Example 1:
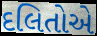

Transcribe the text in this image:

દલિતોએ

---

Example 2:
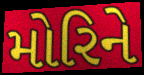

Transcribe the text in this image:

મોરિને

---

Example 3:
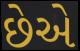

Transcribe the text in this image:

છેએ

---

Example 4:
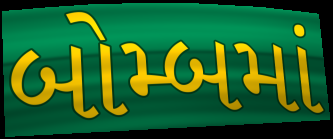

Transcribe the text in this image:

બોમ્બમાં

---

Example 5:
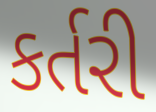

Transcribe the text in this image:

કર્તરી